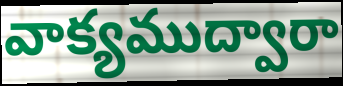
వాక్యముద్వారా